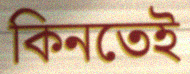
কিনতেই